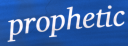
prophetic